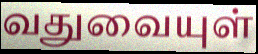
வதுவையுள்